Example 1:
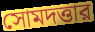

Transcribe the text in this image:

সোমদত্তার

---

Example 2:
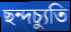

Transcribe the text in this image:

ছন্দচ্যুতি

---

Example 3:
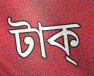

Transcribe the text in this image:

টাক্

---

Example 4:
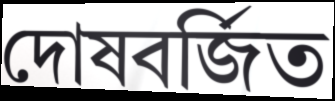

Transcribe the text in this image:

দোষবর্জিত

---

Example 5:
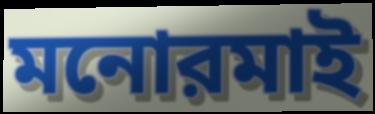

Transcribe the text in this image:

মনোরমাই